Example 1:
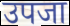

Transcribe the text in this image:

उपजा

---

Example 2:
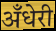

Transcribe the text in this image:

अँधेरी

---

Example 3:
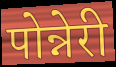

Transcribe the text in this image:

पोन्नेरी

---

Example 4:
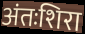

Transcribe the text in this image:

अंतःशिरा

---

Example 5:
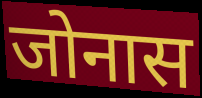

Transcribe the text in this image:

जोनास